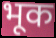
भूक